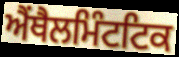
ਐਂਥੈਲਮਿੰਟਟਿਕ